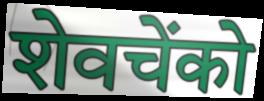
शेवचेंको